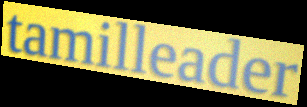
tamilleader